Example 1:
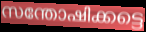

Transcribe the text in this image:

സന്തോഷിക്കട്ടെ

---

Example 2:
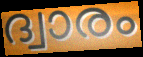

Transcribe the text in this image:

ദ്വാരം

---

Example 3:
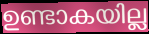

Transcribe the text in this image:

ഉണ്ടാകയില്ല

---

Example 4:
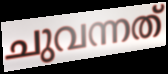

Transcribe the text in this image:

ചുവന്നത്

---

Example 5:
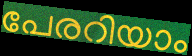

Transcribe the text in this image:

പേരറിയാം